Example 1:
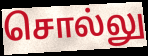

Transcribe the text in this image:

சொல்லு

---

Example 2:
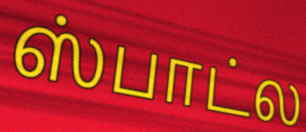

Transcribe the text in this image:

ஸ்பாட்ல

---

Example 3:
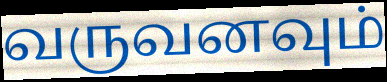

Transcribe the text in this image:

வருவனவும்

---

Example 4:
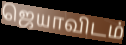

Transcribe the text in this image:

ஜெயாவிடம்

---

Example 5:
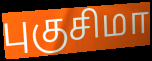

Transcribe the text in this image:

புகுசிமா